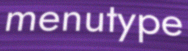
menutype